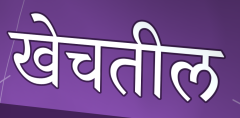
खेचतील